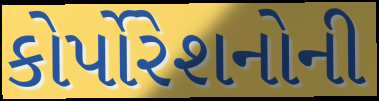
કોર્પોરેશનોની